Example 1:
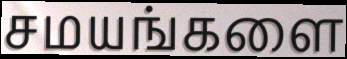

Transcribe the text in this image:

சமயங்களை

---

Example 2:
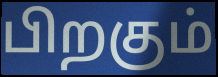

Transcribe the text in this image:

பிறகும்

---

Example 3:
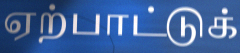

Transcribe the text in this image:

ஏற்பாட்டுக்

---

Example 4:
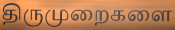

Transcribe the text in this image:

திருமுறைகளை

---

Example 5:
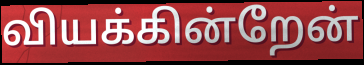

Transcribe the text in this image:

வியக்கின்றேன்